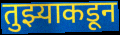
तुझ्याकडून